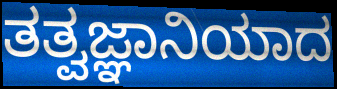
ತತ್ವಜ್ಞಾನಿಯಾದ